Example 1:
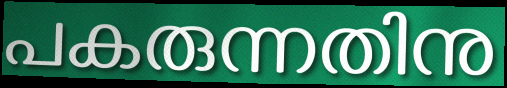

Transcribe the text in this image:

പകരുന്നതിനു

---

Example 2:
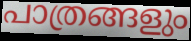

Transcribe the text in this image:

പാത്രങ്ങളും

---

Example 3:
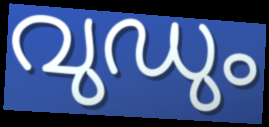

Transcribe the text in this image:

വുഡും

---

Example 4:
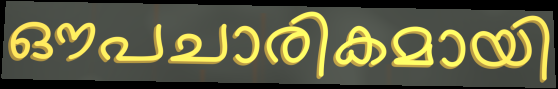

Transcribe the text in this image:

ഔപചാരികമായി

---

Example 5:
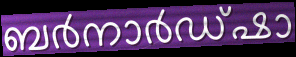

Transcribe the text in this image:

ബർനാർഡ്ഷാ